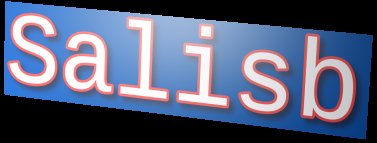
Salisb